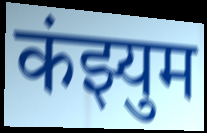
कंझ्युम